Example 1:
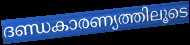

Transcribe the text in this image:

ദണ്ഡകാരണ്യത്തിലൂടെ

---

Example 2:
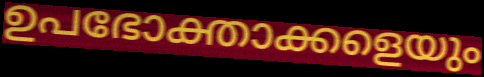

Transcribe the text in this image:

ഉപഭോക്താക്കളെയും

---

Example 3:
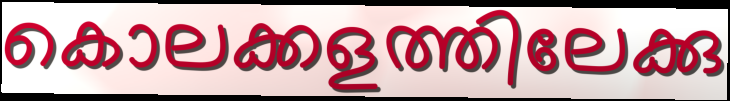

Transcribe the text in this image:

കൊലക്കളത്തിലേക്കു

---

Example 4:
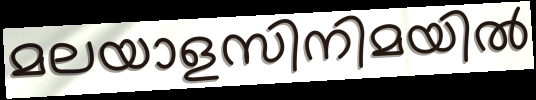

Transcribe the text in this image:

മലയാളസിനിമയിൽ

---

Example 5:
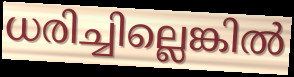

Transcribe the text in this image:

ധരിച്ചില്ലെങ്കിൽ